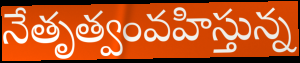
నేతృత్వంవహిస్తున్న